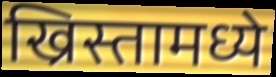
ख्रिस्तामध्ये